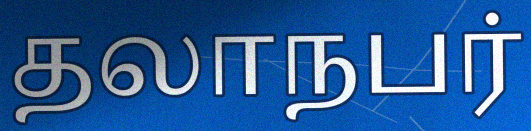
தலாநபர்